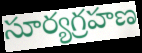
సూర్యగ్రహణ